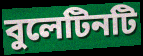
বুলেটিনটি